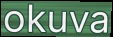
okuva